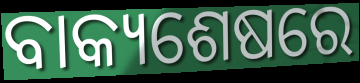
ବାକ୍ୟଶେଷରେ